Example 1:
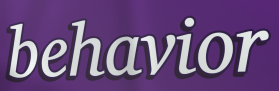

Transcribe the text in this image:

behavior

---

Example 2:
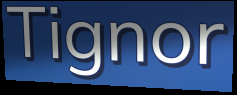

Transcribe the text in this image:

Tignor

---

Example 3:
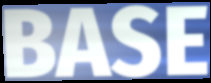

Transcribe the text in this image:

BASE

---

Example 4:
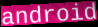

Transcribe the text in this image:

android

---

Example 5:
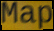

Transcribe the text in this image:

Map